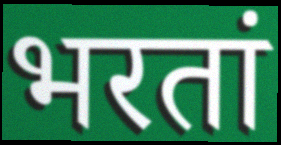
भरतां